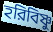
হরিবিষ্ণু